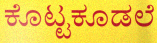
ಕೊಟ್ಟಕೂಡಲೆ